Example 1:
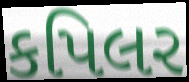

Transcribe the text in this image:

કપિલર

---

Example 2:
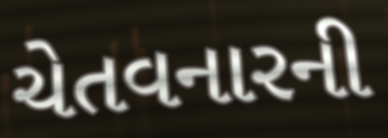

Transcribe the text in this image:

ચેતવનારની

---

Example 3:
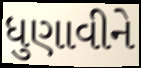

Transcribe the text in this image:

ધુણાવીને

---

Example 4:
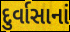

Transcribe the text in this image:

દુર્વાસાનાં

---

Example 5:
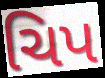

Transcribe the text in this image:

ચિપ